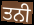
ਤਨੀ